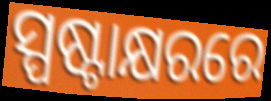
ସ୍ପଷ୍ଟାକ୍ଷରରେ